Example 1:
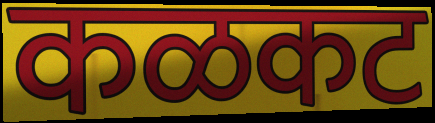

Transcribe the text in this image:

कळकट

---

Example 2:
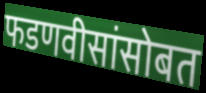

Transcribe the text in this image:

फडणवीसांसोबत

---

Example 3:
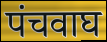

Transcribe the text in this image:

पंचवाघ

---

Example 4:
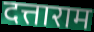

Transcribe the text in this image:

दत्ताराम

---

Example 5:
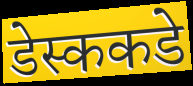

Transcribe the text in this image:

डेस्ककडे